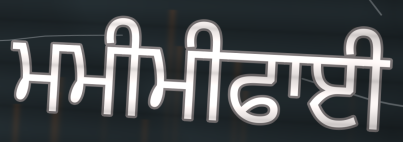
ਮਮੀਮੀਫਾਈ